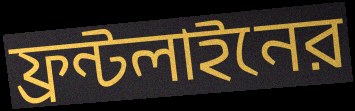
ফ্রন্টলাইনের